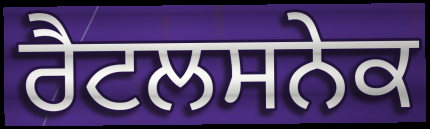
ਰੈਟਲਸਨੇਕ